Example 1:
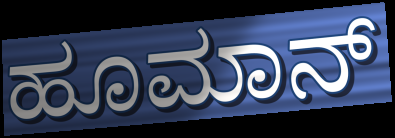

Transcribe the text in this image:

ಹೂಮಾನ್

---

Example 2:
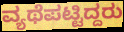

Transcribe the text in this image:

ವ್ಯಥೆಪಟ್ಟಿದ್ದರು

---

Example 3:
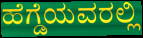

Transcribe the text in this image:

ಹೆಗ್ಡೆಯವರಲ್ಲಿ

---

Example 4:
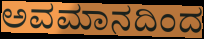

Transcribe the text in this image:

ಅವಮಾನದಿಂದ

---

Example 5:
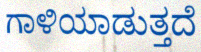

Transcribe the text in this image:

ಗಾಳಿಯಾಡುತ್ತದೆ